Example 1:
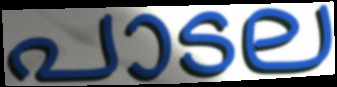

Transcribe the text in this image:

പാടല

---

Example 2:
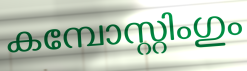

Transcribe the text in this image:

കമ്പോസ്റ്റിംഗും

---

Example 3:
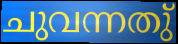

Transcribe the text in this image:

ചുവന്നതു്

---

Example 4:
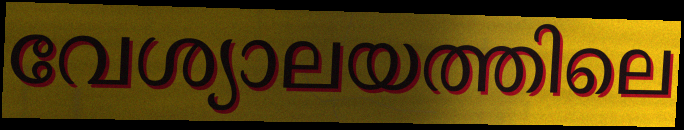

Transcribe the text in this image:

വേശ്യാലയത്തിലെ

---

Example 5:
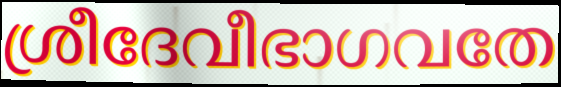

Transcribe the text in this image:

ശ്രീദേവീഭാഗവതേ